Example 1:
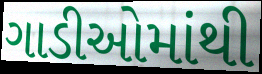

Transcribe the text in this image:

ગાડીઓમાંથી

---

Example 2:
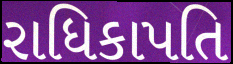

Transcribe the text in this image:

રાધિકાપતિ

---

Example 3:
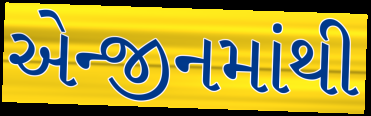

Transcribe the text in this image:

એન્જીનમાંથી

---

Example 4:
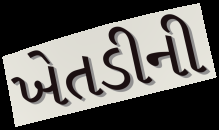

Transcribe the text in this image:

ખેતડીની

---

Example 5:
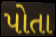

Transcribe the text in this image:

પોતા